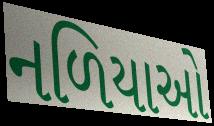
નળિયાઓ